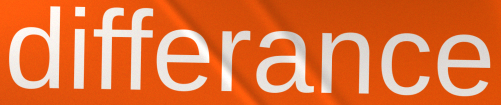
differance